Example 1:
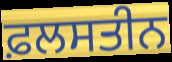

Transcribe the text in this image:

ਫ਼ਲਸਤੀਨ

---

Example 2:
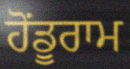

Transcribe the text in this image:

ਹੋਂਡੂਰਾਮ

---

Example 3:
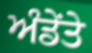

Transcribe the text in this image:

ਅੰਡੇਂਤੇ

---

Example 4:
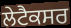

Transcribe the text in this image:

ਲੇਟੈਕਸਰ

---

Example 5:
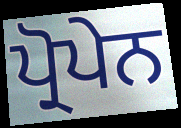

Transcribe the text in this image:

ਪ੍ਰੋਪੇਨ